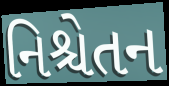
નિશ્ચેતન